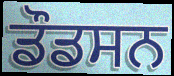
ਡੌਡਸਨ